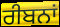
ਰੀਬਨਾਂ